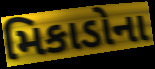
મિકાડોના